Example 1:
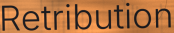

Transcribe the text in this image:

Retribution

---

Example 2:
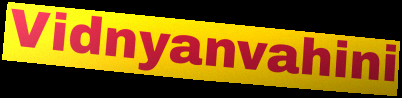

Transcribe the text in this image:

Vidnyanvahini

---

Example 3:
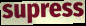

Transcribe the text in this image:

supress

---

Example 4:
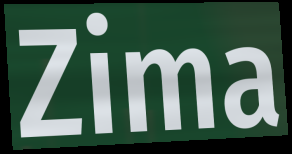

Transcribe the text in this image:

Zima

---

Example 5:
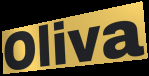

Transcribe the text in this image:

Oliva